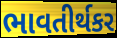
ભાવતીર્થકર